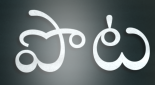
పొట